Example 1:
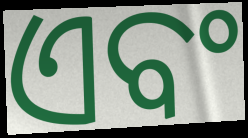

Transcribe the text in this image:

ଏବଂ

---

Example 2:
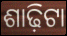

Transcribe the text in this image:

ଶାଢ଼ିଟା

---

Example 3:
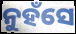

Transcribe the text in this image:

ନୁହଁସେ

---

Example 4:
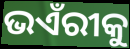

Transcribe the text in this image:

ଭଏଁରୀକୁ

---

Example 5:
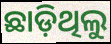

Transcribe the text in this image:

ଛାଡ଼ିଥିଲୁ